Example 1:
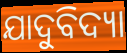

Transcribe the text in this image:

ଯାଦୁବିଦ୍ୟା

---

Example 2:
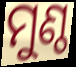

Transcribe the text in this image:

ମୁଣ୍ଠ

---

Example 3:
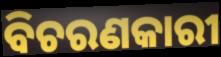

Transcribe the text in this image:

ବିଚରଣକାରୀ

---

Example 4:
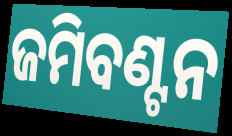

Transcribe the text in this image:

ଜମିବଣ୍ଟନ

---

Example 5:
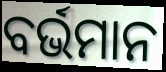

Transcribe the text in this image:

ବର୍ଭମାନ